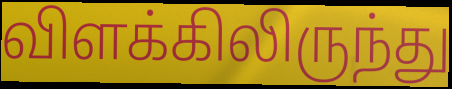
விளக்கிலிருந்து